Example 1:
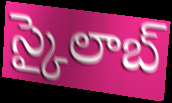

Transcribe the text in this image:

స్కైలాబ్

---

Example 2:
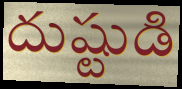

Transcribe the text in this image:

దుష్టుడి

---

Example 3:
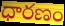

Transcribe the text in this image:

ధారణం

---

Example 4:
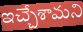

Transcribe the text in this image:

ఇచ్చేశామని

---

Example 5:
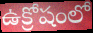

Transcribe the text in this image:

ఉక్రోషంలో